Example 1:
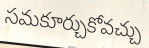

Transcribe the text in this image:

సమకూర్చుకోవచ్చు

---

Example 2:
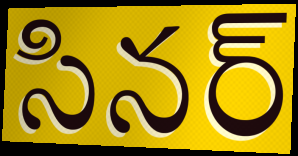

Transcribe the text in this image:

సినర్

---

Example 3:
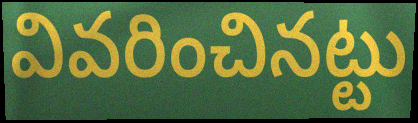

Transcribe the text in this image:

వివరించినట్టు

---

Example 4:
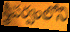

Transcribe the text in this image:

స్త్రీపర్వంలోని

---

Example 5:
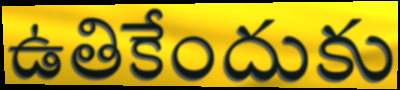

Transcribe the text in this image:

ఉతికేందుకు